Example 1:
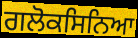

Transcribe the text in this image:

ਗਲੋਕਸਿਨਿਆ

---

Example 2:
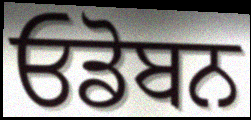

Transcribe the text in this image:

ਓਡੋਬਨ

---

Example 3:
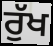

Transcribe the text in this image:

ਰੁੱਖ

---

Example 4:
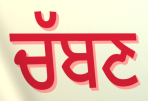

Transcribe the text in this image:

ਚੱਬਣ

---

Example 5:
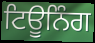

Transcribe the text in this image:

ਟਿਊਨਿੰਗ